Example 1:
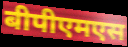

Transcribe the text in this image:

बीपीएमएस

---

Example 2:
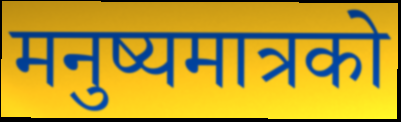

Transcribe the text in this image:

मनुष्यमात्रको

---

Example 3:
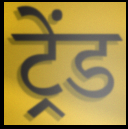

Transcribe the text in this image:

ट्रेंड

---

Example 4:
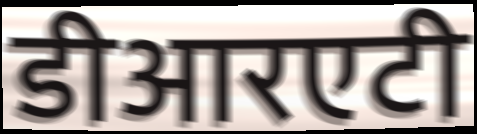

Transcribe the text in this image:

डीआरएटी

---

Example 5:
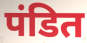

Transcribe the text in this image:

पंडित